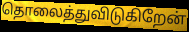
தொலைத்துவிடுகிறேன்